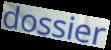
dossier